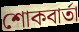
শোকবার্তা